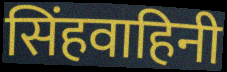
सिंहवाहिनी